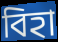
বিহা